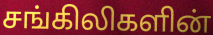
சங்கிலிகளின்